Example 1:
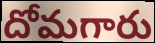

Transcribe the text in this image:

దోమగారు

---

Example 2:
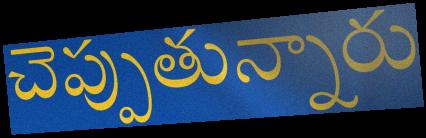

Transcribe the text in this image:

చెప్పుతున్నారు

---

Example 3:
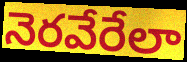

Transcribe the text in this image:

నెరవేరేలా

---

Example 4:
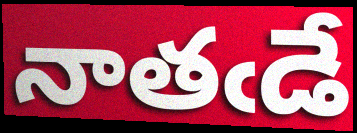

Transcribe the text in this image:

నాతఁడే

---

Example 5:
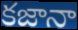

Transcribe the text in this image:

కజానా